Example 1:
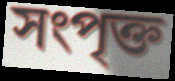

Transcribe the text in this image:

সংপৃক্ত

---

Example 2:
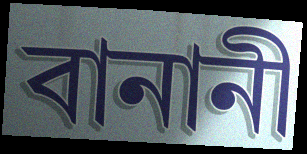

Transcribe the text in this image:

বানানী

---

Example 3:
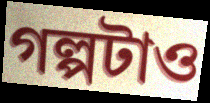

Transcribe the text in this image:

গল্পটাও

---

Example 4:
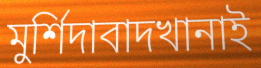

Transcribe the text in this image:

মুর্শিদাবাদখানাই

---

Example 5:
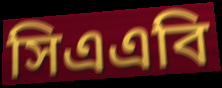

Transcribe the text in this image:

সিএএবি